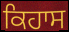
ਕਿਹਾਸ